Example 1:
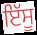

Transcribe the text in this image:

ਇੱਸੂ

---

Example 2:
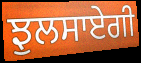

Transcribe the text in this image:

ਝੁਲਸਾਏਗੀ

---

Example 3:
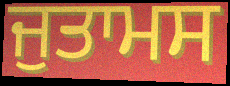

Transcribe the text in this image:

ਜੁਤਾਮਸ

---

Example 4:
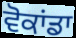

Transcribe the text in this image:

ਵੋਕਾਂਡਾ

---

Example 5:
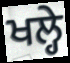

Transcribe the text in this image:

ਖਲ੍ਹੇ